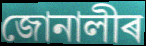
জোনালীৰ